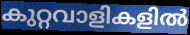
കുറ്റവാളികളിൽ